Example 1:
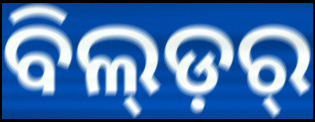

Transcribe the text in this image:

ବିଲ୍ଡ଼ର୍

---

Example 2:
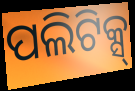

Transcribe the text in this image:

ପଲିଟିକ୍ସ୍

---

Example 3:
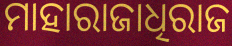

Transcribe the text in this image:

ମାହାରାଜାଧିରାଜ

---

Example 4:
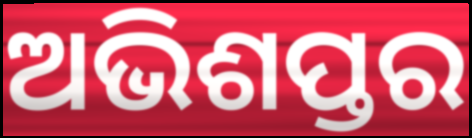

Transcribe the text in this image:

ଅଭିଶପ୍ତର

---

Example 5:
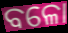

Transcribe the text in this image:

ବଳୋ